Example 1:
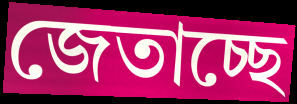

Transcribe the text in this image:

জেতাচ্ছে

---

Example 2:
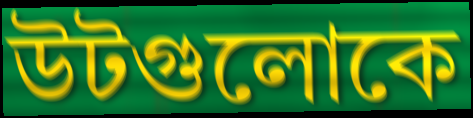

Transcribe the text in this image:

উটগুলোকে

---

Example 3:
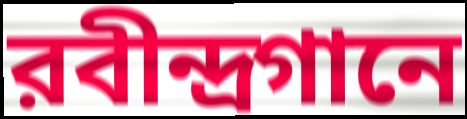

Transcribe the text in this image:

রবীন্দ্রগানে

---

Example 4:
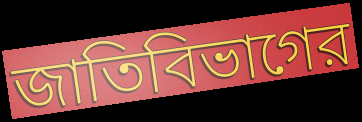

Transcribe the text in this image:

জাতিবিভাগের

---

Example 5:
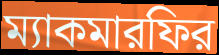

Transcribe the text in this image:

ম্যাকমারফির